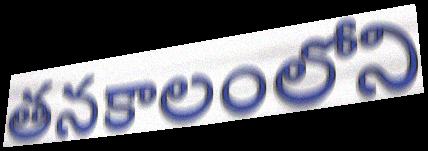
తనకాలంలోని